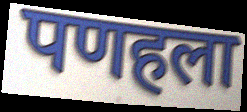
पणहला